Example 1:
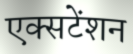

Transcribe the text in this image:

एक्सटेंशन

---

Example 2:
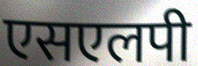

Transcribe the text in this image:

एसएलपी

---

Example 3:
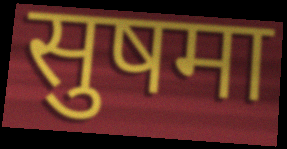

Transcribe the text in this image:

सुषमा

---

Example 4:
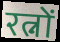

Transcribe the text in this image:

रत्नों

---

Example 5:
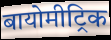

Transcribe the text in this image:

बायोमीट्रिक